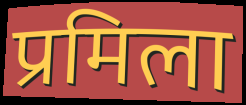
प्रमिला